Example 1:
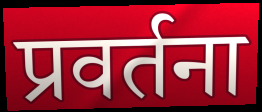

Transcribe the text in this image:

प्रवर्तना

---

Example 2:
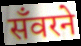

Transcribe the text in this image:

सँवरने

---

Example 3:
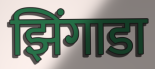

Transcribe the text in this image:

झिंगाडा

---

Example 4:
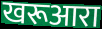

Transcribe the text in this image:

खरूआरा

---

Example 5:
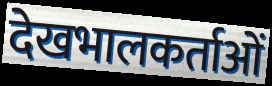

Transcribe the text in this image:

देखभालकर्ताओं